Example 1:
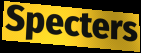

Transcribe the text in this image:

Specters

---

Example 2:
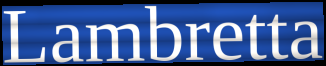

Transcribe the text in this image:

Lambretta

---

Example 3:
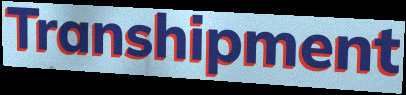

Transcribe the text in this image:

Transhipment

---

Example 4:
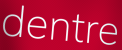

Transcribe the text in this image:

dentre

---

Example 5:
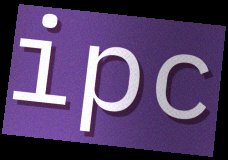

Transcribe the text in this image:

ipc